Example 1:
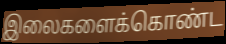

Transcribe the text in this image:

இலைகளைக்கொண்ட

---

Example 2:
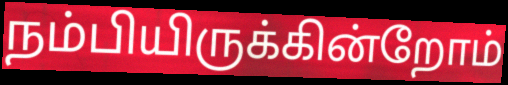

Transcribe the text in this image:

நம்பியிருக்கின்றோம்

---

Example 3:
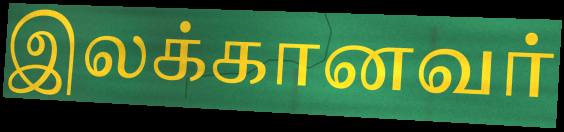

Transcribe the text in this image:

இலக்கானவர்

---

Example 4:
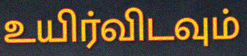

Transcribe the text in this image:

உயிர்விடவும்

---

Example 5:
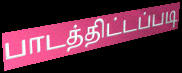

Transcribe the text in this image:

பாடத்திட்டப்படி